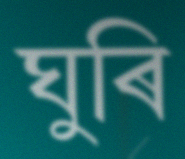
ঘুৰি